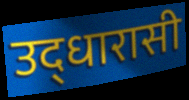
उद्धारासी